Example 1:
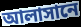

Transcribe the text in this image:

আলাসানে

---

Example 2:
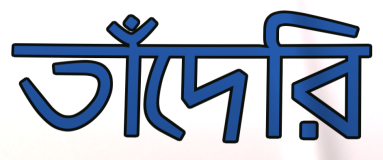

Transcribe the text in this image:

তাঁদেরি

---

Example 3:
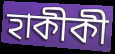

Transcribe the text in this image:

হাকীকী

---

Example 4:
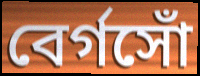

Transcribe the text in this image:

বের্গসোঁ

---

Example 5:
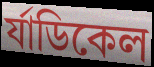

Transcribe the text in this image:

র্যাডিকেল